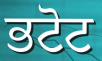
ਭਟੋਟ